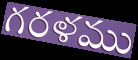
గరళము